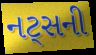
નટ્સની